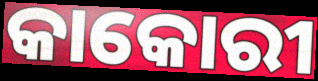
କାକୋରୀ